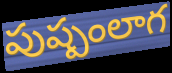
పుష్పంలాగ